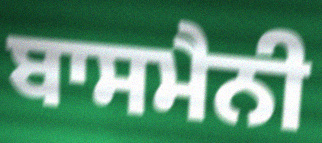
ਬਾਸਮੈਨੀ